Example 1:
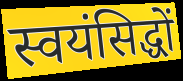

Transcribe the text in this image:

स्वयंसिद्धों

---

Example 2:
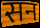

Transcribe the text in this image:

सन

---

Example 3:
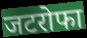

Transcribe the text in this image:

जटरोफा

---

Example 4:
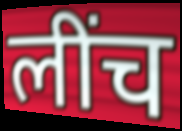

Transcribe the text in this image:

लींच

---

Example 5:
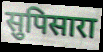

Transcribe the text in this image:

सुपिसारा